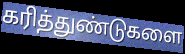
கரித்துண்டுகளை